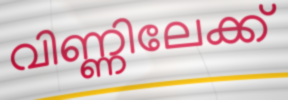
വിണ്ണിലേക്ക്